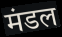
मंडल